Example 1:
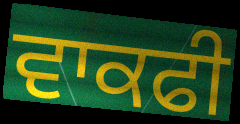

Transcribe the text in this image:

ਵਾਕਫੀ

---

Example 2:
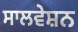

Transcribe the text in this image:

ਸਾਲਵੇਸ਼ਨ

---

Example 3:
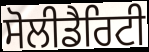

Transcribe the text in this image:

ਸੋਲੀਡੈਰਿਟੀ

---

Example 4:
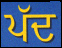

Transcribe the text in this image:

ਪੱਦ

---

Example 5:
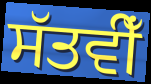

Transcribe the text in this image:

ਸੱਤਵੀਁ